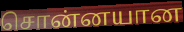
சொன்னயான